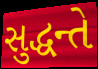
સુદ્ધન્તે